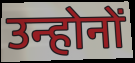
उन्होनों